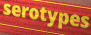
serotypes